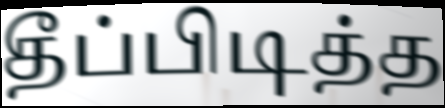
தீப்பிடித்த